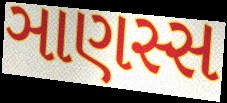
ઞાણસ્સ